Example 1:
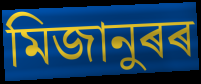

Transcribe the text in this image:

মিজানুৰৰ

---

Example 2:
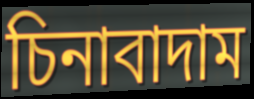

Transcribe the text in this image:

চিনাবাদাম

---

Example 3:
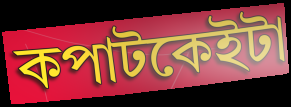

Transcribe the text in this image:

কপাটকেইটা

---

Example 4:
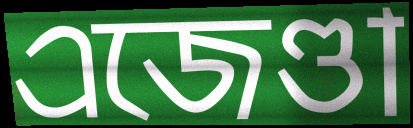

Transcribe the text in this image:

এজেণ্ডা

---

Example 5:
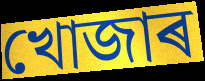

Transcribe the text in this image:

খোজাৰ